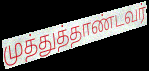
முத்துத்தாண்டவர்